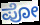
ಪೋ